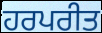
ਹਰਪਰੀਤ